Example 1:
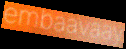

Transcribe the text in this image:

embaavaay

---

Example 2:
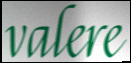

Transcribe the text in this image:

valere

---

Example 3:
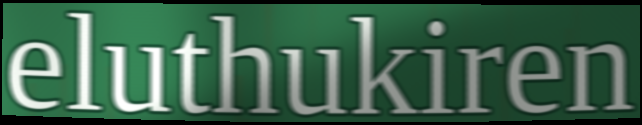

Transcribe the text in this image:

eluthukiren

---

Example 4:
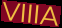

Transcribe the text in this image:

VIIIA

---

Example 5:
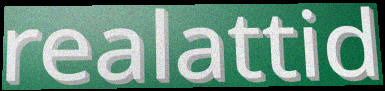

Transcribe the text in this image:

realattid